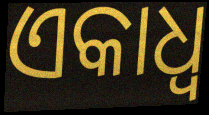
ଏକାଧ୍ଵ